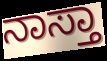
ನಾಸ್ತಾ